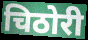
चिठोरी